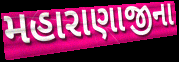
મહારાણાજીના